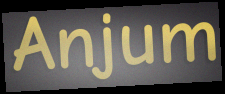
Anjum